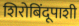
शिरोबिंदूपाशी